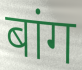
बांग